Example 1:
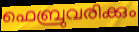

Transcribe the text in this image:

ഫെബ്രുവരിക്കും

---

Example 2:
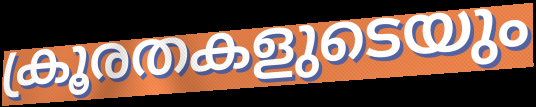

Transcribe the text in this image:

ക്രൂരതകളുടെയും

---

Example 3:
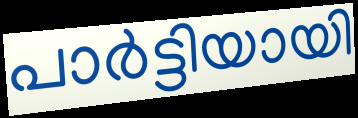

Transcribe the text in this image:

പാർട്ടിയായി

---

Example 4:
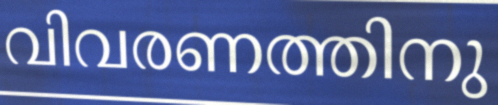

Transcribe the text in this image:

വിവരണത്തിനു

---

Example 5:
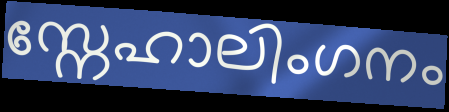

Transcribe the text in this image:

സ്നേഹാലിംഗനം